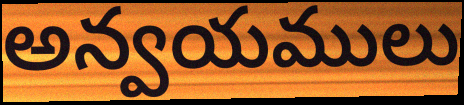
అన్వయములు